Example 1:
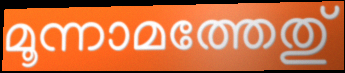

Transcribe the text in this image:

മൂന്നാമത്തേതു്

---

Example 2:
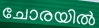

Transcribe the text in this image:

ചോരയിൽ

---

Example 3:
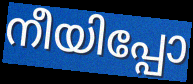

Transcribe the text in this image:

നീയിപ്പോ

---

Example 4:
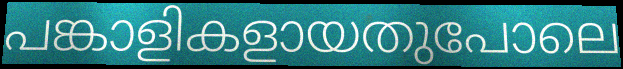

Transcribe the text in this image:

പങ്കാളികളായതുപോലെ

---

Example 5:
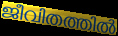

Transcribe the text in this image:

ജീവിതത്തിൽ